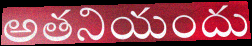
అతనియందు